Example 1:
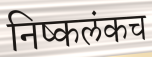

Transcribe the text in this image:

निष्कलंकच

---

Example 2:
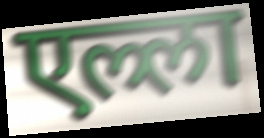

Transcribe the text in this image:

एल्ला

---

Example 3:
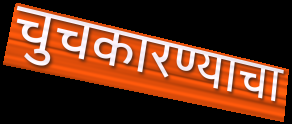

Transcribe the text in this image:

चुचकारण्याचा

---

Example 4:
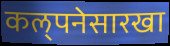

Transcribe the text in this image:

कल्पनेसारखा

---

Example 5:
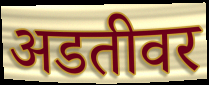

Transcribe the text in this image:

अडतीवर